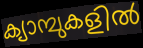
ക്യാമ്പുകളിൽ